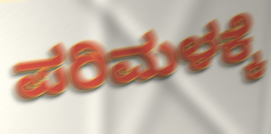
ಪರಿಮಳಕ್ಕೆ